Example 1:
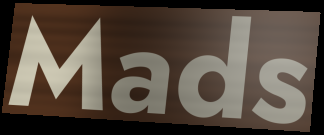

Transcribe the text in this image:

Mads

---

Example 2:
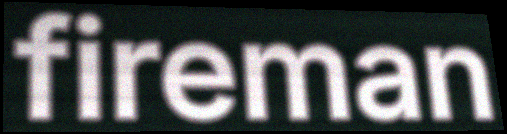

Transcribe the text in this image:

fireman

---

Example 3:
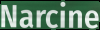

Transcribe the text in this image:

Narcine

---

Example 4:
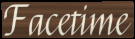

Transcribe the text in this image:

Facetime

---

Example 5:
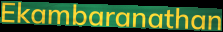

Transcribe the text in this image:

Ekambaranathan